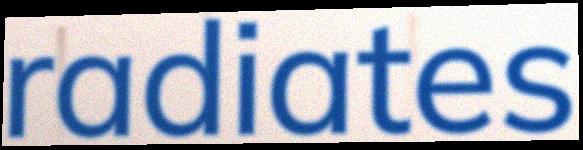
radiates